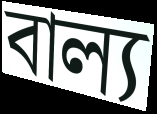
বাল্য